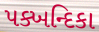
પક્ખન્દિકા